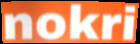
nokri